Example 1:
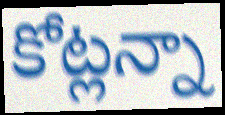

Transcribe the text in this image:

కోట్లన్నా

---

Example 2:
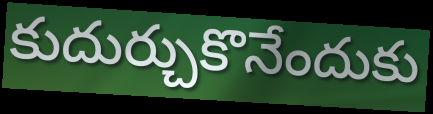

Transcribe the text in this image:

కుదుర్చుకొనేందుకు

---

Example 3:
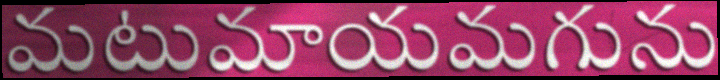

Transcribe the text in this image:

మటుమాయమగును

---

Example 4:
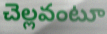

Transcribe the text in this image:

చెల్లవంటూ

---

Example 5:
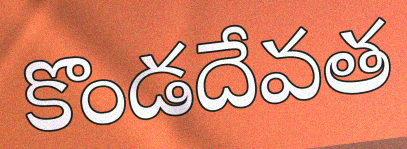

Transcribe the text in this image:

కొండదేవత